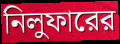
নিলুফারের